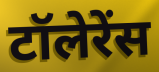
टॉलेरेंस